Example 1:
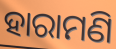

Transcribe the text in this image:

ହାରାମଣି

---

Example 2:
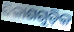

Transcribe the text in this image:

ବିକାଶଗୁଡ଼ିକ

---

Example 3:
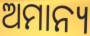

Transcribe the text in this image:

ଅମାନ୍ଯ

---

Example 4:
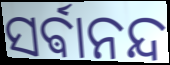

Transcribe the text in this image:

ସର୍ଵାନନ୍ଦ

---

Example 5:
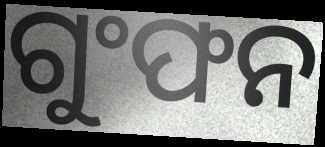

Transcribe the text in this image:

ଗୁଂଫନ